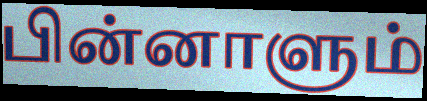
பின்னாளும்